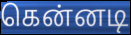
கென்னடி